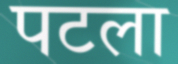
पटला